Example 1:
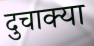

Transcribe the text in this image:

दुचाक्या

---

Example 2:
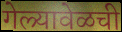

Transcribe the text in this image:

गेल्यावेळची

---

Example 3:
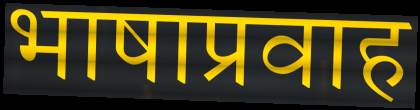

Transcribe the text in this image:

भाषाप्रवाह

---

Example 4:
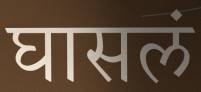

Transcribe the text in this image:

घासलं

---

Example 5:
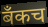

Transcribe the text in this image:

बँकच